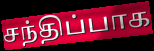
சந்திப்பாக